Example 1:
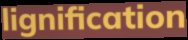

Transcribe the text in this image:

lignification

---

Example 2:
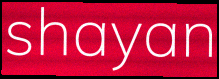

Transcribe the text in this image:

shayan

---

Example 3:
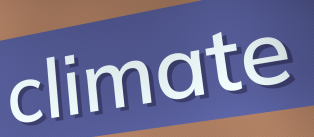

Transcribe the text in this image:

climate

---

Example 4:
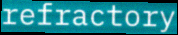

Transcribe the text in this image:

refractory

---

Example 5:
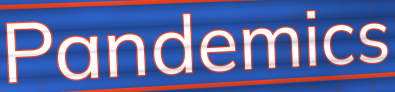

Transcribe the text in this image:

Pandemics